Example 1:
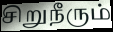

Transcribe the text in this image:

சிறுநீரும்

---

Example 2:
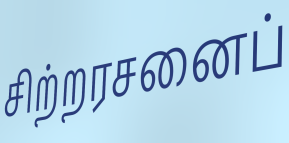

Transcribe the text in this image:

சிற்றரசனைப்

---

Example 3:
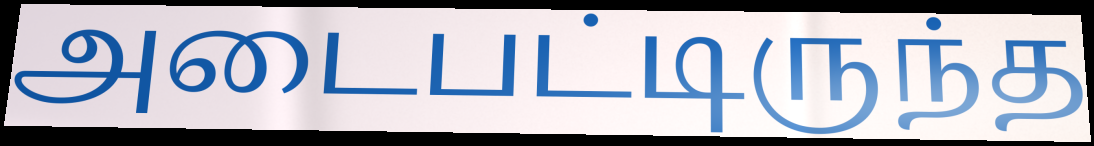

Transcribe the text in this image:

அடைபட்டிருந்த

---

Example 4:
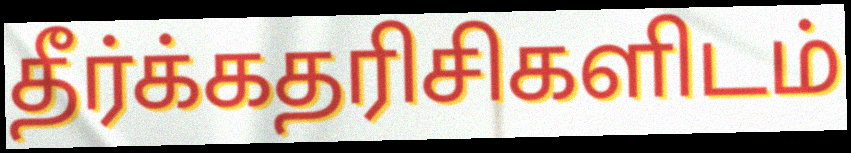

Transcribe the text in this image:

தீர்க்கதரிசிகளிடம்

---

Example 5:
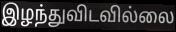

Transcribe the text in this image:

இழந்துவிடவில்லை